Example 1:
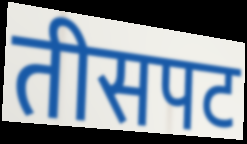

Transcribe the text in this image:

तीसपट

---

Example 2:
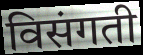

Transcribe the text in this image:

विसंगती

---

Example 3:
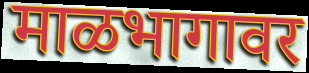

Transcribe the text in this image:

माळभागावर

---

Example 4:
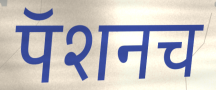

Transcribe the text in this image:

पॅशनच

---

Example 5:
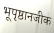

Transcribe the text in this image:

भूपृष्ठानजीक